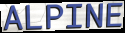
ALPINE